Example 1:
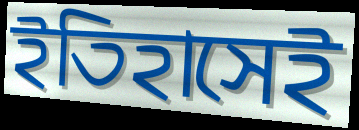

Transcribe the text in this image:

ইতিহাসেই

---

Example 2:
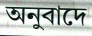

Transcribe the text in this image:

অনুবাদে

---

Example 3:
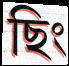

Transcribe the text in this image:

ছিং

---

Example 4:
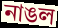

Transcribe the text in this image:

নাঙল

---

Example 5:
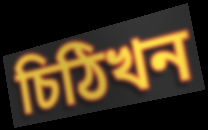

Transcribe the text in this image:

চিঠিখন